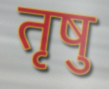
तृषु